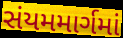
સંયમમાર્ગમાં